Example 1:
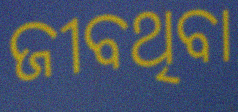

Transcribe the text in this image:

ଜୀବଥିବା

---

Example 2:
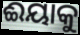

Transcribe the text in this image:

ଈୟାକୁ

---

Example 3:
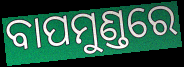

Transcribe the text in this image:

ବାପମୁଣ୍ଡରେ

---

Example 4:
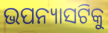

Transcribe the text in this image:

ଭପନ୍ୟାସଟିକୁ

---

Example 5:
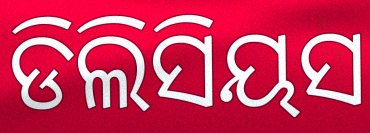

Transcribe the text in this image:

ଡିଲିସିୟସ